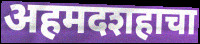
अहमदशहाचा